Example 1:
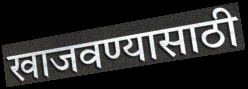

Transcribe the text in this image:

खाजवण्यासाठी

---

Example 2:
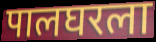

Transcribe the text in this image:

पालघरला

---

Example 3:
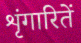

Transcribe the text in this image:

शृंगारितें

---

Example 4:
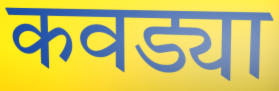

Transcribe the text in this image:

कवड्या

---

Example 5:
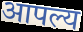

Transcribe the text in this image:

आपल्य